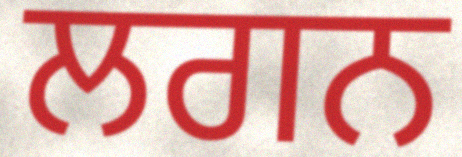
ਲਗਨ